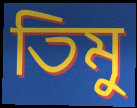
তিমু